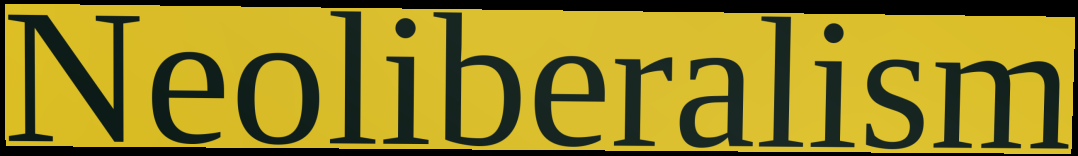
Neoliberalism